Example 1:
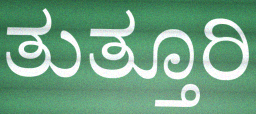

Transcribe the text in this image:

ತುತ್ತೂರಿ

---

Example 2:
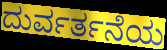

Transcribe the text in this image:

ದುರ್ವರ್ತನೆಯ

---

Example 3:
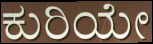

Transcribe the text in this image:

ಕುರಿಯೇ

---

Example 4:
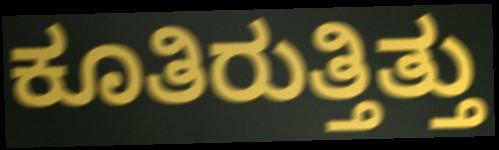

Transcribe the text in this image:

ಕೂತಿರುತ್ತಿತ್ತು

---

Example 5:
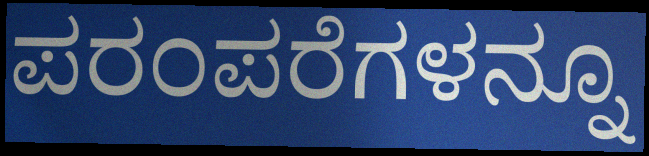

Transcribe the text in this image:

ಪರಂಪರೆಗಳನ್ನೂ